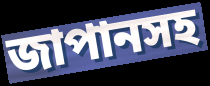
জাপানসহ